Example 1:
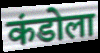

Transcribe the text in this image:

कंडोला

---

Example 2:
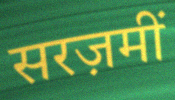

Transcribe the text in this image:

सरज़मीं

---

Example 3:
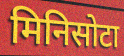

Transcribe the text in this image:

मिनिसोटा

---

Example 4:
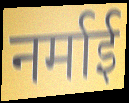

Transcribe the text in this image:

नर्माई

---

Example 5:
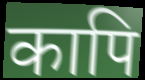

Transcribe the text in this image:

कापि